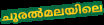
ചൂരൽമലയിലെ